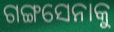
ଗଙ୍ଗସେନାକୁ